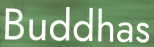
Buddhas